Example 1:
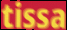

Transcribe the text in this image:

tissa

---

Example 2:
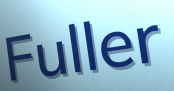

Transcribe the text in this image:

Fuller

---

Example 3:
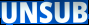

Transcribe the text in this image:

UNSUB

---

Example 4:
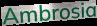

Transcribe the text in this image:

Ambrosia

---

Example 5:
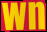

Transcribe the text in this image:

wn